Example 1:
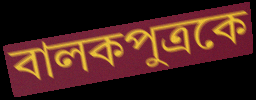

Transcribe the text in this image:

বালকপুত্রকে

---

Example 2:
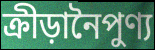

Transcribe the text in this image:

ক্রীড়ানৈপুণ্য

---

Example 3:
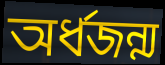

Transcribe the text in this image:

অর্ধজন্ম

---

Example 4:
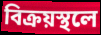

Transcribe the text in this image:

বিক্রয়স্থলে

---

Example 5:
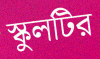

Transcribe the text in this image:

স্কুলটির